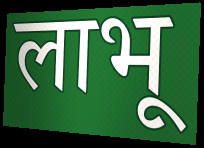
लाभू